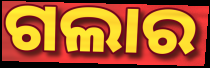
ଗଲାର